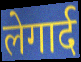
लेगार्द